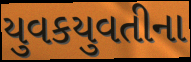
યુવકયુવતીના